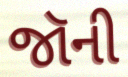
જૉની